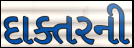
દાક્તરની